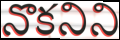
నొకనిని